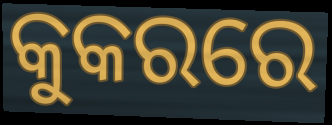
କୁକରରେ